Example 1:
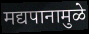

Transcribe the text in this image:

मद्यपानामुळे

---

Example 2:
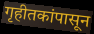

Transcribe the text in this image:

गृहीतकांपासून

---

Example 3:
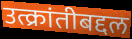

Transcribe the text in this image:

उत्क्रांतीबद्दल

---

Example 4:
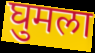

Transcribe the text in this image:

घुमला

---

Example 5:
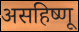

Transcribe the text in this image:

असहिष्णू